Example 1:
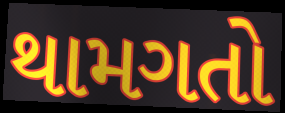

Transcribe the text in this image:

થામગતો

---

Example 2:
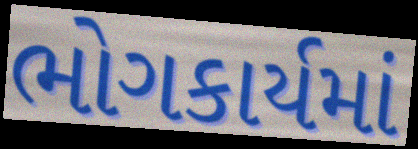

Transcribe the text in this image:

ભોગકાર્યમાં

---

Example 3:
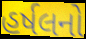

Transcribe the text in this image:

હર્ષલનો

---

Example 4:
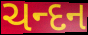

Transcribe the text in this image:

ચન્દન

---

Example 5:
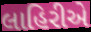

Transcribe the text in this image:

લાહિરીએ